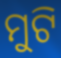
ମୁଟି